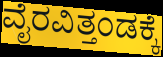
ವೈರವಿತ್ತಂಡಕ್ಕೆ